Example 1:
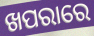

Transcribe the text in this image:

ଖପରାରେ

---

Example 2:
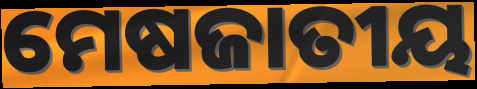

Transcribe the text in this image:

ମେଷଜାତୀୟ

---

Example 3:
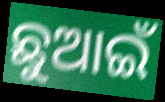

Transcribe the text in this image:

ଛୁଆଇଁ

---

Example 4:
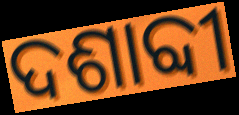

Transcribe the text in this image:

ଦଶାବ୍ଦୀ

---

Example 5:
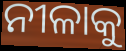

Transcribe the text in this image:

ନୀଳାକୁ